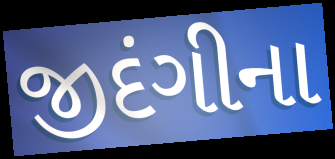
જીદંગીના